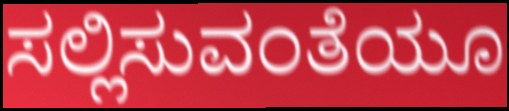
ಸಲ್ಲಿಸುವಂತೆಯೂ